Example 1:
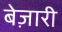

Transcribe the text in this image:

बेज़ारी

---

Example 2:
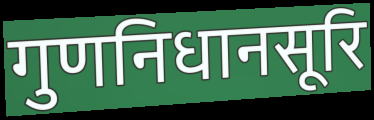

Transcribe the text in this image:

गुणनिधानसूरि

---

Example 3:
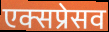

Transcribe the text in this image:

एक्सप्रेसव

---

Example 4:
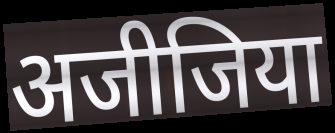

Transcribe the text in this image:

अजीजिया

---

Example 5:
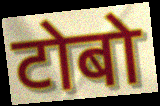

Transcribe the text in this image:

टोबो